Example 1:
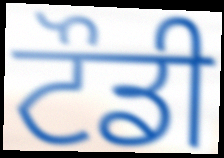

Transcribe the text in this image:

ਟੌਡੀ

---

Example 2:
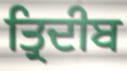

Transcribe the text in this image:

ਤ੍ਰਿਦੀਬ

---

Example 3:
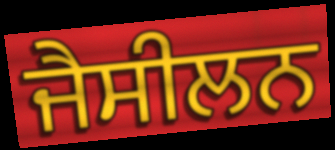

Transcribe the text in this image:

ਜੈਸੀਲਨ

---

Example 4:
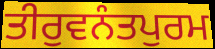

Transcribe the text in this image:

ਤੀਰੁਵਨੰਤਪੁਰਮ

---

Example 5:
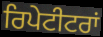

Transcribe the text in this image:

ਰਿਪੇਟੀਟਰਾਂ